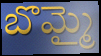
బొమ్మై